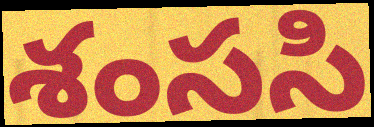
శంససి